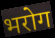
भरोग